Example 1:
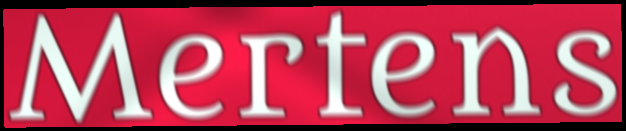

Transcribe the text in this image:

Mertens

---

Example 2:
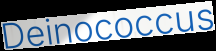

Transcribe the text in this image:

Deinococcus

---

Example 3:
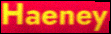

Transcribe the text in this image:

Haeney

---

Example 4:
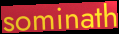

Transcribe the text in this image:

sominath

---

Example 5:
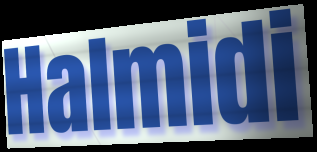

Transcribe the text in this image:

Halmidi